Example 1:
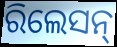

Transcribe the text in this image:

ରିଲେସନ୍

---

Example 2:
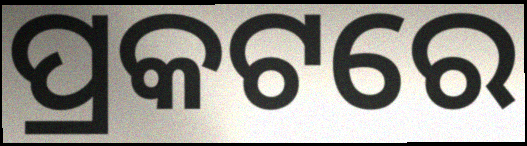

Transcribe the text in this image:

ପ୍ରକଟରେ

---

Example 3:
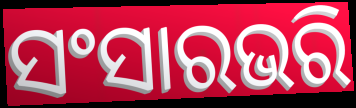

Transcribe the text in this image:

ସଂସାରଭରି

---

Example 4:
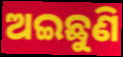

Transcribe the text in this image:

ଅଇଛୁଣି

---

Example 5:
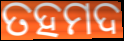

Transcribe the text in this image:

ତହମଦ